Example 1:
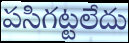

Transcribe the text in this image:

పసిగట్టలేదు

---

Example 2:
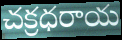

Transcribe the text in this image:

చక్రధరాయ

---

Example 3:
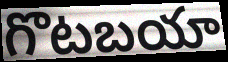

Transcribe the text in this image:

గొటబయా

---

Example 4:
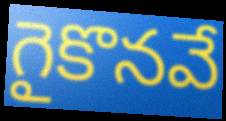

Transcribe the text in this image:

గైకొనవే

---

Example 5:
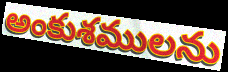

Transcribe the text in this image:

అంకుశములను